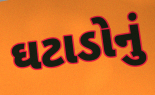
ઘટાડોનું